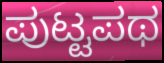
ಪುಟ್ಟಪಥ